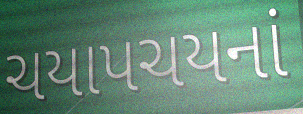
ચયાપચયનાં